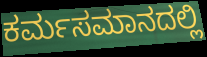
ಕರ್ಮಸಮಾನದಲ್ಲಿ